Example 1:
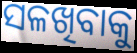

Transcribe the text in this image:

ସଳଖିବାକୁ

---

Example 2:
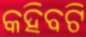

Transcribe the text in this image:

କହିବଟି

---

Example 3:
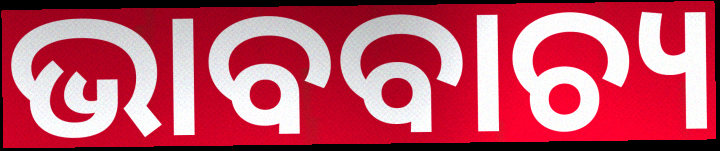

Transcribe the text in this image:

ଭାବବାଚ୍ୟ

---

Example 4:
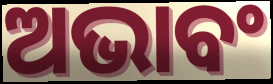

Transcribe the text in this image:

ଅଭାବଂ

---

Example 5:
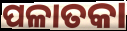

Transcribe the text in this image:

ପଳାତକା